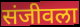
संजीवला